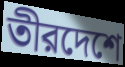
তীরদেশে